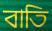
বাতি